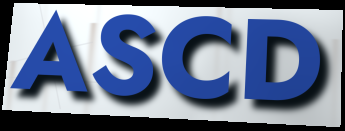
ASCD